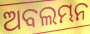
ଅବଲମ୍ଭନ